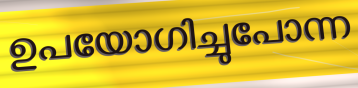
ഉപയോഗിച്ചുപോന്ന